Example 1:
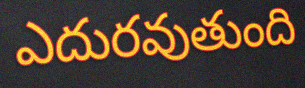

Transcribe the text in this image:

ఎదురవుతుంది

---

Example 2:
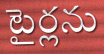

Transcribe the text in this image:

టైర్లను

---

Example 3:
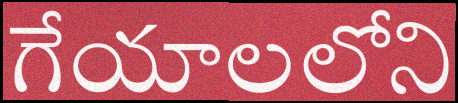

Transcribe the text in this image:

గేయాలలోని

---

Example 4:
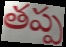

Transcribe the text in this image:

తప్ప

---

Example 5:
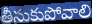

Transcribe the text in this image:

తీసుకుపోవాలి